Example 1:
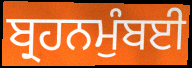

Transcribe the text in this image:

ਬ੍ਰਹਨਮੁੰਬਈ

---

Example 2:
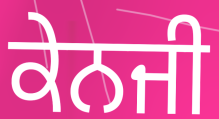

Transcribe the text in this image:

ਕੇਨਜੀ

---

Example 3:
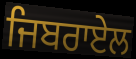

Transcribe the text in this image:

ਜਿਬਰਾਏਲ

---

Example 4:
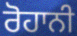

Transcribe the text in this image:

ਰੋਹਾਨੀ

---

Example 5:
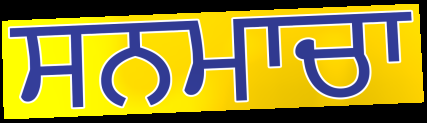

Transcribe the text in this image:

ਸਨਮਾਚਾ